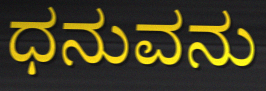
ಧನುವನು